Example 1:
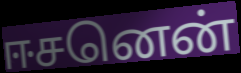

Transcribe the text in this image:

ஈசனென்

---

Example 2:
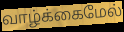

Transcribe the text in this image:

வாழ்க்கைமேல்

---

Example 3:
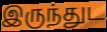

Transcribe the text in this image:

இருந்துட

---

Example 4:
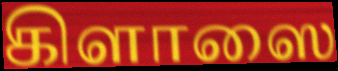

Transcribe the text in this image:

கிளாஸை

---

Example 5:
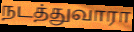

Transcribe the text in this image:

நடத்துவாரா